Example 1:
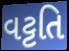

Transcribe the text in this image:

વટ્ટતિ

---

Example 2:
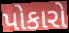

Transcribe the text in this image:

પોકારો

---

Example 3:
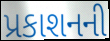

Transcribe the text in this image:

પ્રકાશનની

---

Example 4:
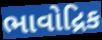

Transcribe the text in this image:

ભાવોદ્રિક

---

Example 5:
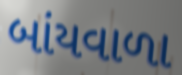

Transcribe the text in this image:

બાંયવાળા